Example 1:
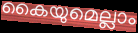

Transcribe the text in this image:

കൈയുമെല്ലാം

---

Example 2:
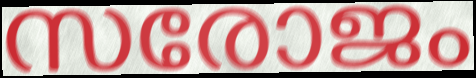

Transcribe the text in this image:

സരോജം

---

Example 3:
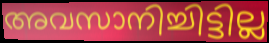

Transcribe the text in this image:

അവസാനിച്ചിട്ടില്ല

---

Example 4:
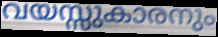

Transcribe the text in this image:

വയസ്സുകാരനും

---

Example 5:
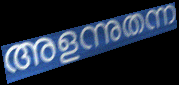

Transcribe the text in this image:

അളന്നുതന്ന